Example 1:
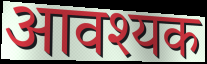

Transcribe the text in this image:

आवश्यक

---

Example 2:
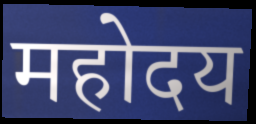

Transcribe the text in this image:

महोदय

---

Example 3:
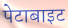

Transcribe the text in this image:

पेटाबाइट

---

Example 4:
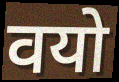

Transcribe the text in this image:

वयो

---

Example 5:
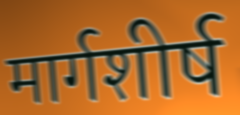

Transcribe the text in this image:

मार्गशीर्ष